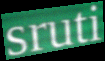
sruti